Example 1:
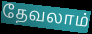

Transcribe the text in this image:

தேவலாம்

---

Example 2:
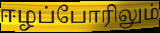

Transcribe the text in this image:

ஈழப்போரிலும்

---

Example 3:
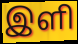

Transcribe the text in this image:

இளி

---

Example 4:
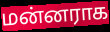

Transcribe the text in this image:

மன்னராக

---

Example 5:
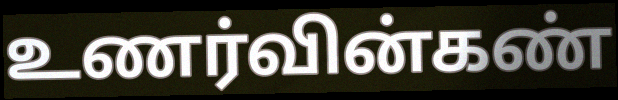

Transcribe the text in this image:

உணர்வின்கண்